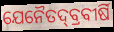
ଯେନୈତଦ୍‌ବ୍ରବୀର୍ଷି